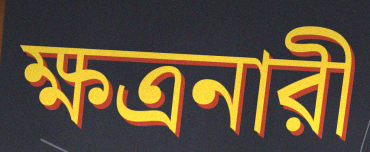
ক্ষত্রনারী